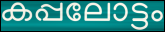
കപ്പലോട്ടം